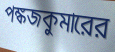
পঙ্কজকুমারের